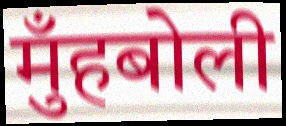
मुँहबोली